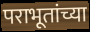
पराभूतांच्या